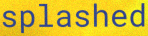
splashed